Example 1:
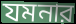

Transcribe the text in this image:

যমনার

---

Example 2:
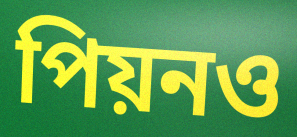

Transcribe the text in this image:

পিয়নও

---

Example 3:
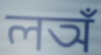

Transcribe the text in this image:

লঅঁ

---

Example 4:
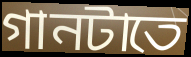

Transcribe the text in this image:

গানটাতে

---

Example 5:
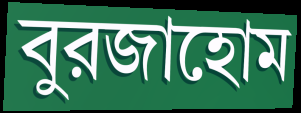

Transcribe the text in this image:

বুরজাহোম